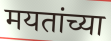
मयतांच्या